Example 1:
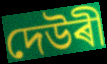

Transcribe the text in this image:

দেউৰী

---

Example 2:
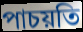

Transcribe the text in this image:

পাচয়তি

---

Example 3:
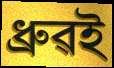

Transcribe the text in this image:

ধ্ৰুৱই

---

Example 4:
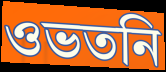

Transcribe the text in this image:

ওভতনি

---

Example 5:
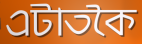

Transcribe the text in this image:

এটাতকৈ